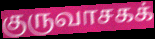
குருவாசகக்